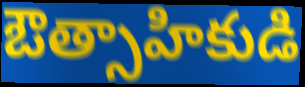
ఔత్సాహికుడి